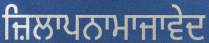
ਜ਼ਿਲਾਪਨਾਮਾਜਾਵੇਦ